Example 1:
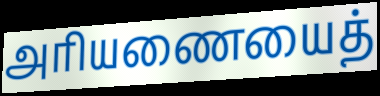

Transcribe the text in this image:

அரியணையைத்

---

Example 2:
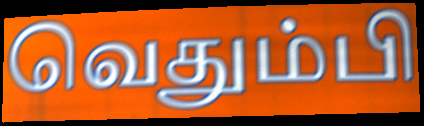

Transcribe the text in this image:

வெதும்பி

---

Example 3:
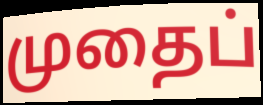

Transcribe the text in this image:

முதைப்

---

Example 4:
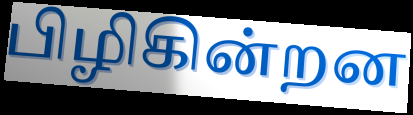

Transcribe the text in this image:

பிழிகின்றன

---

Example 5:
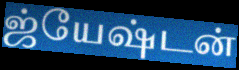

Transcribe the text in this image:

ஜ்யேஷ்டன்